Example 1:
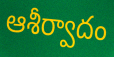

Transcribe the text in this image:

ఆశీర్వాదం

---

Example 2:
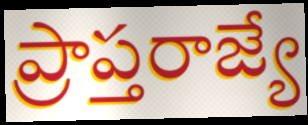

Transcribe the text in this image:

ప్రాప్తరాజ్యే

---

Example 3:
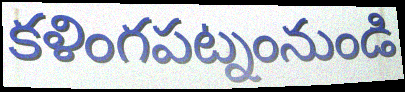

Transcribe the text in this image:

కళింగపట్నంనుండి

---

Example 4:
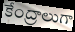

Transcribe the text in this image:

కేంద్రాలుగా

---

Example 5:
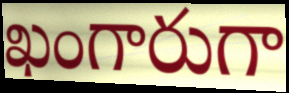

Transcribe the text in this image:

ఖంగారుగా